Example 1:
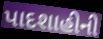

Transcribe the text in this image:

પાદશાહીની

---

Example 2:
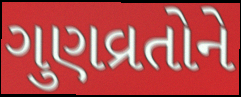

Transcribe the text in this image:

ગુણવ્રતોને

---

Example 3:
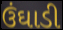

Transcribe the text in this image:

ઉંઘાડી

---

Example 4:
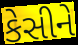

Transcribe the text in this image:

કેસીને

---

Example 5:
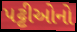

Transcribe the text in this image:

પટ્ટીઓનો